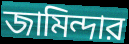
জামিন্দার